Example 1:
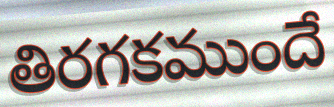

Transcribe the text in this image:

తిరగకముందే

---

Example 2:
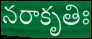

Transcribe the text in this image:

నరాకృతిః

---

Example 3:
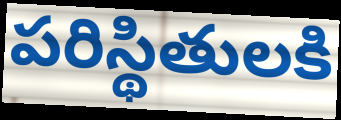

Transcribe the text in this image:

పరిస్థితులకి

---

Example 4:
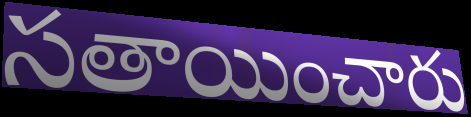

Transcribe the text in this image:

సతాయించారు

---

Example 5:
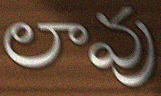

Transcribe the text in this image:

లావు